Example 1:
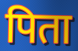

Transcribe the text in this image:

पिता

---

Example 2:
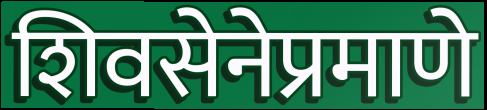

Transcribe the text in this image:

शिवसेनेप्रमाणे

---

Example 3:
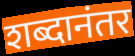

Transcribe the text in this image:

शब्दानंतर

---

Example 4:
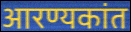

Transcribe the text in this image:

आरण्यकांत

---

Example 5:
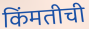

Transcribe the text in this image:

किंमतीची